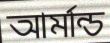
আর্মান্ড